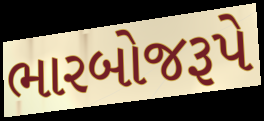
ભારબોજરૂપે